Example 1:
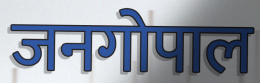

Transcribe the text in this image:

जनगोपाल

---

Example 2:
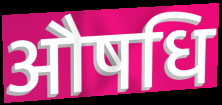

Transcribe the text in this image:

औषधि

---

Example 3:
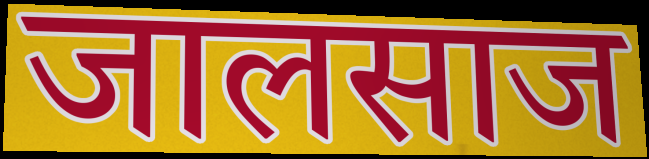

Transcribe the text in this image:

जालसाज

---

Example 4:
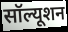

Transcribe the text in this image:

सॉल्यूशन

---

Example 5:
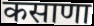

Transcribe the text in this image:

कसाणा